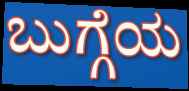
ಬುಗ್ಗೆಯ